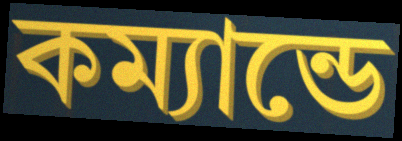
কম্যান্ডে